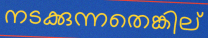
നടക്കുന്നതെങ്കില്